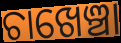
ଚାଖେଞ୍ଚା